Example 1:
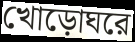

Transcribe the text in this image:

খোড়োঘরে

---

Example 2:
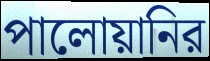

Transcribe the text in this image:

পালোয়ানির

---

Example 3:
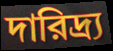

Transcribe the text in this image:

দারিদ্র্য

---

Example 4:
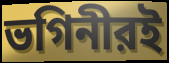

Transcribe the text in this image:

ভগিনীরই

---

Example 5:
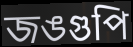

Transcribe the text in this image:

জঙগুপি